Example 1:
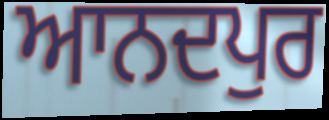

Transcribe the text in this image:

ਆਨਦਪੁਰ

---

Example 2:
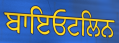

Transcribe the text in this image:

ਬਾਇਓਟਲਿਨ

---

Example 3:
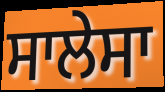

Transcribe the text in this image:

ਸਾਲੇਸਾ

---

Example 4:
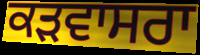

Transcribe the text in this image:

ਕੜਵਾਸਰਾ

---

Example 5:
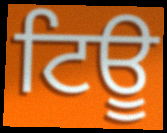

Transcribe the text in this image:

ਟਿਊ